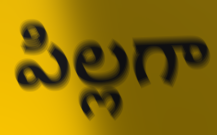
పిల్లగా